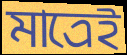
মাত্রেই